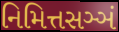
નિમિત્તસઞ્ઞં